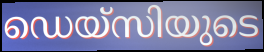
ഡെയ്സിയുടെ